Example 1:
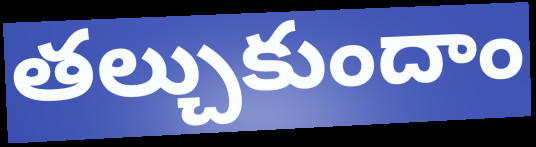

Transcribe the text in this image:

తల్చుకుందాం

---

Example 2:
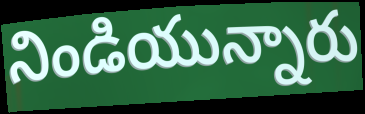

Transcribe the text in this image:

నిండియున్నారు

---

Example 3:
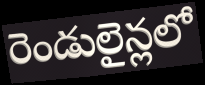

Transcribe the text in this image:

రెండులైన్లలో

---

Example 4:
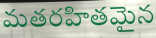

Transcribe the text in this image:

మతరహితమైన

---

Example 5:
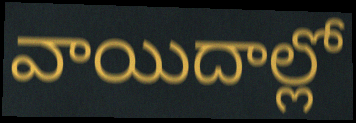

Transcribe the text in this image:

వాయిదాల్లో